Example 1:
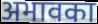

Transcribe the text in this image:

अभावका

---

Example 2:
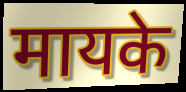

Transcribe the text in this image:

मायके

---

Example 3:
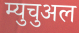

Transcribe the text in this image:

म्युचुअल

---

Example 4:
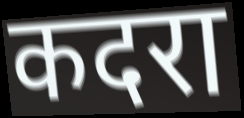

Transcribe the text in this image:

कदरा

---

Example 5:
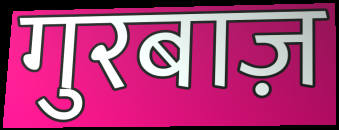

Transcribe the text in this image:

गुरबाज़